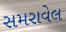
સમરાવેલ